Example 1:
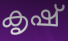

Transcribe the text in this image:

കൃഷ്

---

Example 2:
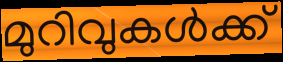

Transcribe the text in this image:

മുറിവുകൾക്ക്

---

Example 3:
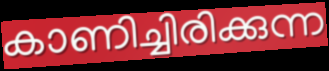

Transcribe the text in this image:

കാണിച്ചിരിക്കുന്ന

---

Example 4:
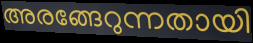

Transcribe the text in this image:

അരങ്ങേറുന്നതായി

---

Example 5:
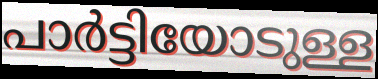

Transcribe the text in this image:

പാർട്ടിയോടുള്ള